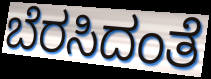
ಬೆರಸಿದಂತೆ